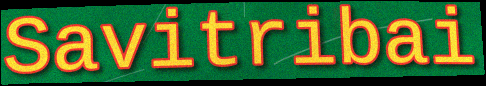
Savitribai